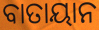
ବାତାୟାନ